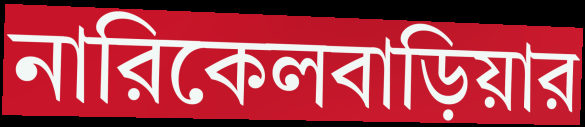
নারিকেলবাড়িয়ার